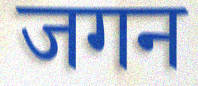
जगन